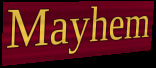
Mayhem